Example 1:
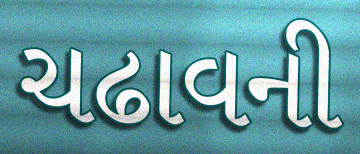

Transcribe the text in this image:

ચઢાવની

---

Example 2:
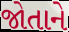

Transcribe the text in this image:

જોતાને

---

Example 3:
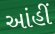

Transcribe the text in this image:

આંહીં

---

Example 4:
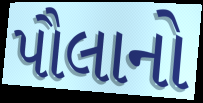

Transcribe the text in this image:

પૌલાનો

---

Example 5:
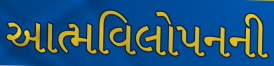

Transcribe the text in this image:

આત્મવિલોપનની